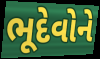
ભૂદેવોને